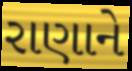
રાણાને